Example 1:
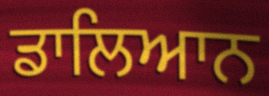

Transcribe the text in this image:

ਡਾਲਿਆਨ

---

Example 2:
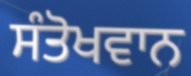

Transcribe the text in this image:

ਸੰਤੋਖਵਾਨ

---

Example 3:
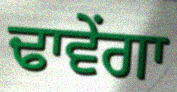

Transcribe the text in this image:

ਢਾਵੇਂਗਾ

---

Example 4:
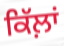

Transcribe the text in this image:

ਕਿੱਲ਼ਾਂ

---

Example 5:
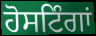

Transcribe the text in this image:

ਹੋਸਟਿੰਗਾਂ